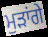
ਮੁੜਾਂਗੇ